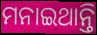
ମନାଇଥାନ୍ତି